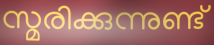
സ്മരിക്കുന്നുണ്ട്